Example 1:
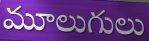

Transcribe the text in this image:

మూలుగులు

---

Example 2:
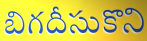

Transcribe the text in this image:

బిగదీసుకొని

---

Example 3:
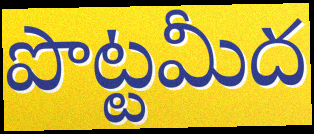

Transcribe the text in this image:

పొట్టమీద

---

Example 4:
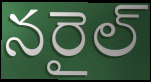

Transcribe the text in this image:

నరైల్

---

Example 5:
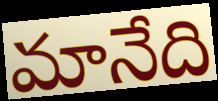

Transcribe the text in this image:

మానేది